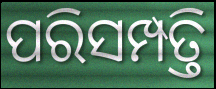
ପରିସମ୍ପତ୍ତି